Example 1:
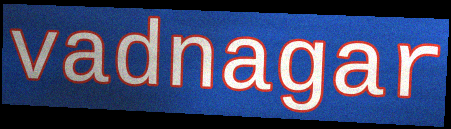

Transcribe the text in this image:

vadnagar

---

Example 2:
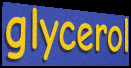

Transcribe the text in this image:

glycerol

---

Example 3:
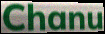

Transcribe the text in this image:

Chanu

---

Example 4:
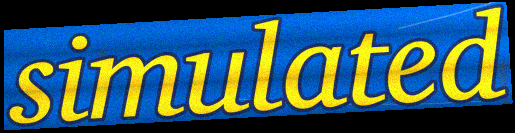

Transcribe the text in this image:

simulated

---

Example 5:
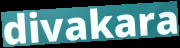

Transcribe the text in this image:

divakara